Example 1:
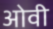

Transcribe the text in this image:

ओवी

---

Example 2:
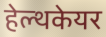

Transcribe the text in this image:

हेल्थकेयर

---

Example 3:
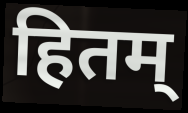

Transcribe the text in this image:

हितम्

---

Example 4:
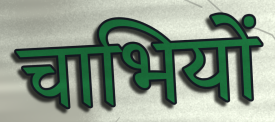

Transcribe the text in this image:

चाभियों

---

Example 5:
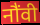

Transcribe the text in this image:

नौंवी